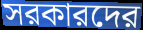
সরকারদের